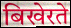
बिखेरते